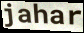
jahar